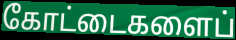
கோட்டைகளைப்